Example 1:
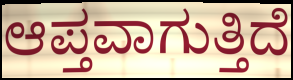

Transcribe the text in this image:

ಆಪ್ತವಾಗುತ್ತಿದೆ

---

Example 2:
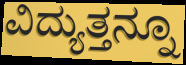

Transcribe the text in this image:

ವಿದ್ಯುತ್ತನ್ನೂ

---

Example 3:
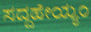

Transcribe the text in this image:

ಸದ್ದಹೇಯ್ಯಂ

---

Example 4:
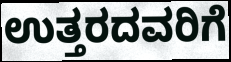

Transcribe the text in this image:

ಉತ್ತರದವರಿಗೆ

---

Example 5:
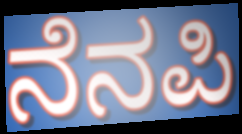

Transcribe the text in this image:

ನೆನಪಿ